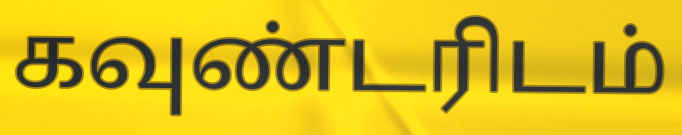
கவுண்டரிடம்